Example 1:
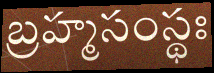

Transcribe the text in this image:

బ్రహ్మసంస్థః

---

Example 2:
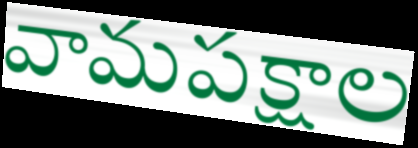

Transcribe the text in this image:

వామపక్షాల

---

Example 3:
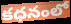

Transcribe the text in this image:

కధనంలో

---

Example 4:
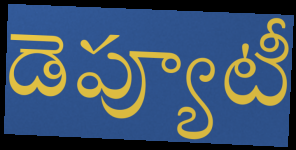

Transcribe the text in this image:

డెప్యూటీ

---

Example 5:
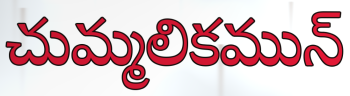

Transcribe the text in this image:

చుమ్మలికమున్